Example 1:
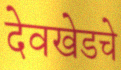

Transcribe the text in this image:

देवखेडचे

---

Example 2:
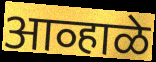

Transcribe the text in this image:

आव्हाळे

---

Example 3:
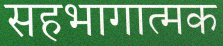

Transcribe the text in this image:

सहभागात्मक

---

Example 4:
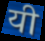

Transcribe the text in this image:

यी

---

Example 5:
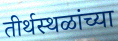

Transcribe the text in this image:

तीर्थस्थळांच्या